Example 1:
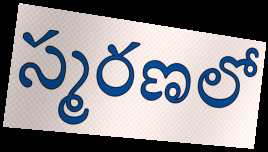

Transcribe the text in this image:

స్మరణలో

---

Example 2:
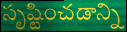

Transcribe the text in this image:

సృష్టించడాన్ని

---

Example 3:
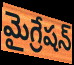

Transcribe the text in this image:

మైగ్రేషన్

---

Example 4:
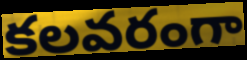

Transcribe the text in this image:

కలవరంగా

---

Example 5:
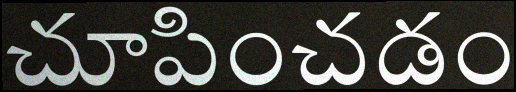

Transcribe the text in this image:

చూపించడం